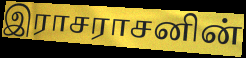
இராசராசனின்